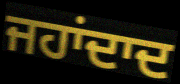
ਜਹਾਂਦਾਦ